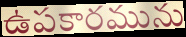
ఉపకారమును